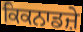
ਕਿਕਨਾਡਜ਼ੇ